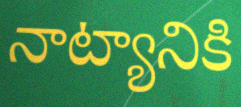
నాట్యానికి